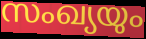
സംഖ്യയും